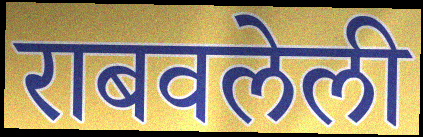
राबवलेली